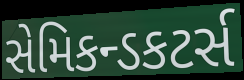
સેમિકન્ડકટર્સ